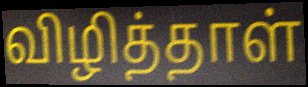
விழித்தாள்